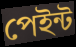
পেইন্ট